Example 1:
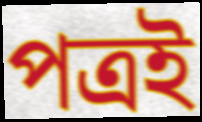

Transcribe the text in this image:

পত্ৰই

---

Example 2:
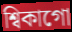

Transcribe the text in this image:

শ্বিকাগো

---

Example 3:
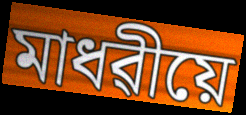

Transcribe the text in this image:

মাধৱীয়ে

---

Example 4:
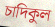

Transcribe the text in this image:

চাদিকুল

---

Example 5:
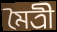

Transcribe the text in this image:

মৈত্ৰী